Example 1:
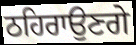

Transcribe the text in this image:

ਠਹਿਰਾਉਣਗੇ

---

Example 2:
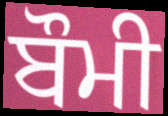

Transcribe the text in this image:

ਬੌਮੀ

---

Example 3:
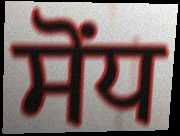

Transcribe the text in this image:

ਸੋਂਧ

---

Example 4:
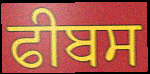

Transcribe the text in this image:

ਫੀਬਸ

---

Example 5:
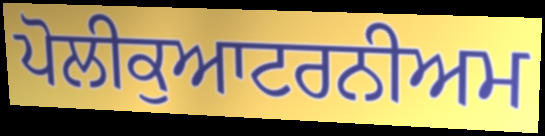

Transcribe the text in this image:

ਪੋਲੀਕੁਆਟਰਨੀਅਮ